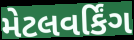
મેટલવર્કિંગ